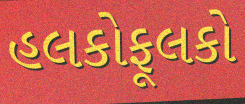
હલકોફૂલકો